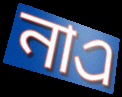
নাএ